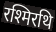
रश्मिरथि